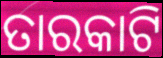
ତାରକାଟି